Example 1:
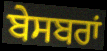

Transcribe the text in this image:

ਬੇਸਬਰਾਂ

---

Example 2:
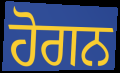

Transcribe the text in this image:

ਹੋਗਨ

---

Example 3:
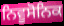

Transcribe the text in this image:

ਨਿਵੂਸੋਨਿਕ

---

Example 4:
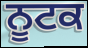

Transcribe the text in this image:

ਨੂਟਕ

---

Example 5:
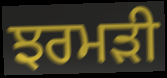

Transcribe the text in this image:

ਝਰਮੜੀ